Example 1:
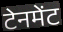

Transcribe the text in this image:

टेनमेंट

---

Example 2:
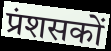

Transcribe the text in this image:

प्रंशसकों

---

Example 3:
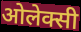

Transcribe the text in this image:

ओलेक्सी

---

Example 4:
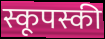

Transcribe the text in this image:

स्कूपस्की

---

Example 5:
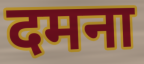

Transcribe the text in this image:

दमना